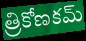
త్రికోణకమ్